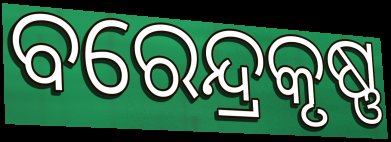
ବରେନ୍ଦ୍ରକୃଷ୍ଣ